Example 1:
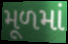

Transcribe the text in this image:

મૂળમાં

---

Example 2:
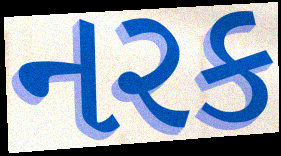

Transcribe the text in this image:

નરક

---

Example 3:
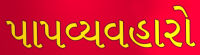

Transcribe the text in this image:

પાપવ્યવહારો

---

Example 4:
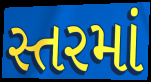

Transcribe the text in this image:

સ્તરમાં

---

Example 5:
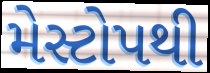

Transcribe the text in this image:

મેસ્ટોપથી